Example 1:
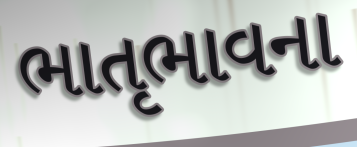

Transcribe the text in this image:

ભાતૃભાવના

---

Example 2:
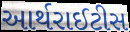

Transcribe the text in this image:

આર્થરાઈટીસ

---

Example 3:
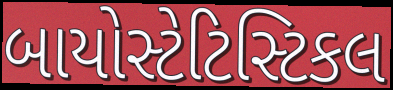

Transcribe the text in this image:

બાયોસ્ટેટિસ્ટિકલ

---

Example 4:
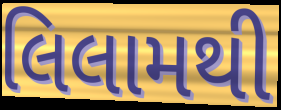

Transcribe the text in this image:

લિલામથી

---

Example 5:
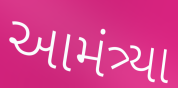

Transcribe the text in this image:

આમંત્ર્યા